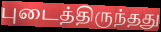
புடைத்திருந்தது